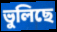
ভুলিছে